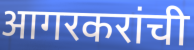
आगरकरांची